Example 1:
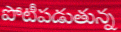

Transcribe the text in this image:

పోటీపడుతున్న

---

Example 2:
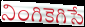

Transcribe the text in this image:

నింగికెగిసే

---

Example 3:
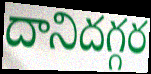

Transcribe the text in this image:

దానిదగ్గర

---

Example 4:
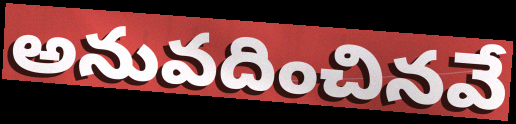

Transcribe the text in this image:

అనువదించినవే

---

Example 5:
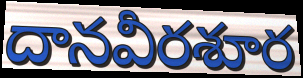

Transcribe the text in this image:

దానవీరశూర